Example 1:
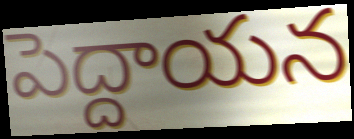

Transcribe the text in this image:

పెద్దాయన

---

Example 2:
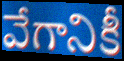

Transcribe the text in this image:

వేగానికీ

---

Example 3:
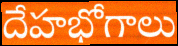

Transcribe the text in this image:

దేహభోగాలు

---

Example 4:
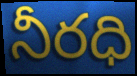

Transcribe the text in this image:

నీరధి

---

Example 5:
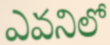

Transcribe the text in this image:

ఎవనిలో